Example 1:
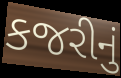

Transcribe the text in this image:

કજરીનું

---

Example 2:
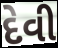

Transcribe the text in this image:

દેવી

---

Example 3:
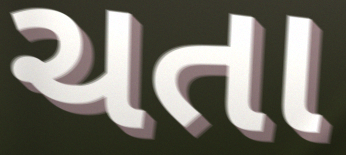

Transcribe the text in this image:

ચતા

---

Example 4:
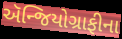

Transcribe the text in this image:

ઍન્જિયોગ્રાફીના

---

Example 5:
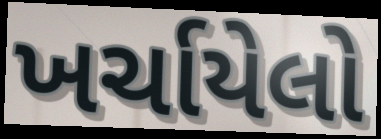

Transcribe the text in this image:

ખર્ચાયેલો